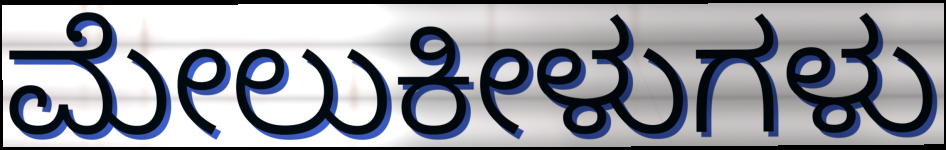
ಮೇಲುಕೀಳುಗಳು